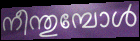
നീന്തുമ്പോൾ